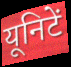
यूनिटें